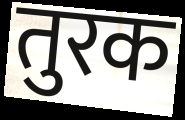
तुरक